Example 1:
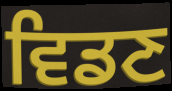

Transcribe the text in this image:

ਵਿਡਣ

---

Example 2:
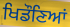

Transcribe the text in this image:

ਖਿਡੌਣਿਆਂ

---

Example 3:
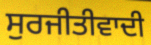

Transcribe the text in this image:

ਸੁਰਜੀਤੀਵਾਦੀ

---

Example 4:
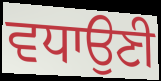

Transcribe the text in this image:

ਵਧਾਉਣੀ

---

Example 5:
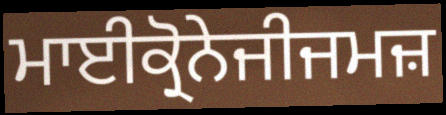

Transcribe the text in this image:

ਮਾਈਕ੍ਰੋਨੇਜੀਜਮਜ਼